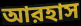
আরহাস